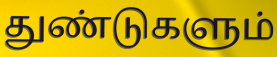
துண்டுகளும்